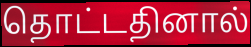
தொட்டதினால்